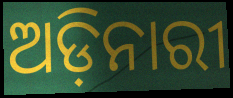
ଅଡ଼ିନାରୀ